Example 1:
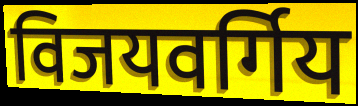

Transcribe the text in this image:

विजयवर्गिय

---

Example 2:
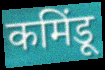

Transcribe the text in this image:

कमिंडू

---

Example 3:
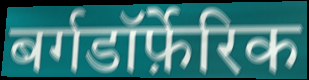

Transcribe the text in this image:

बर्गडॉर्फ़ेरिक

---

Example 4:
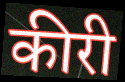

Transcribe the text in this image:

कीरी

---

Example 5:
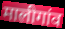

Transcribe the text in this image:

मालीगांव